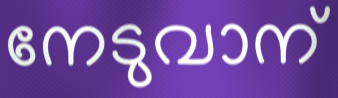
നേടുവാന്